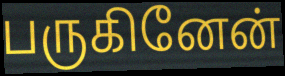
பருகினேன்